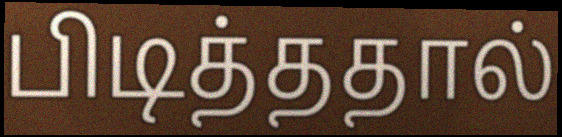
பிடித்ததால்